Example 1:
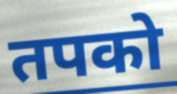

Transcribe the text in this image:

तपको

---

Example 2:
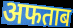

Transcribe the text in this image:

अफताब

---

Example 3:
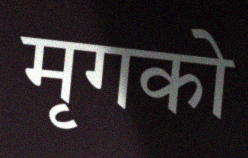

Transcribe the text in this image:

मृगको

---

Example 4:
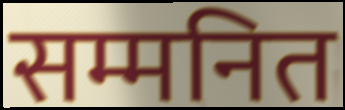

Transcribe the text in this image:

सम्मनित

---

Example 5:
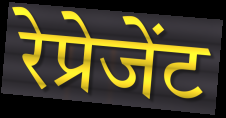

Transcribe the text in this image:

रेप्रेजेंट